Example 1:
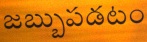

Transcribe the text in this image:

జబ్బుపడటం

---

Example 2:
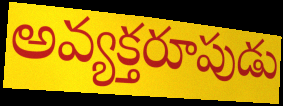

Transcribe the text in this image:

అవ్యక్తరూపుడు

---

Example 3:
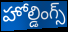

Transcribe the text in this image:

హోల్డింగ్స్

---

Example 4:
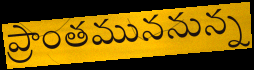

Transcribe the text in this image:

ప్రాంతముననున్న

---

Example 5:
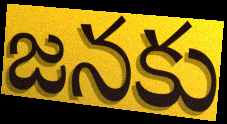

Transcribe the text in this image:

జనకు